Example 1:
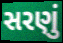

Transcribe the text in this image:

સરણું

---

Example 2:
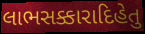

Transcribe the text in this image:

લાભસક્કારાદિહેતુ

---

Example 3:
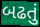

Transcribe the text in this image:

બઢતું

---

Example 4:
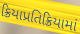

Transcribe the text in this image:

ક્રિયાપ્રતિક્રિયામાં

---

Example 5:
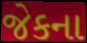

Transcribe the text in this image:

જેકના